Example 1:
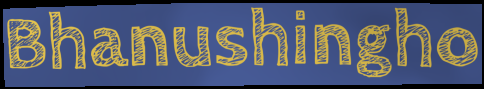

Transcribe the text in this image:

Bhanushingho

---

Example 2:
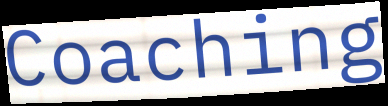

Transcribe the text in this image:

Coaching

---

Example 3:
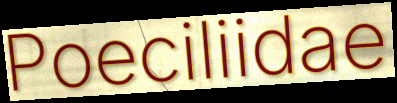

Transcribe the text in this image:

Poeciliidae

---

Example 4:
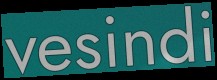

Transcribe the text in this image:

vesindi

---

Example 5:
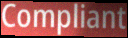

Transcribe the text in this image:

Compliant